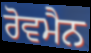
ਰੋਵਮੈਨ